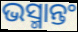
ଭସ୍ମାନ୍ତଂ